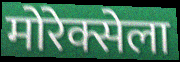
मोरेक्सेला